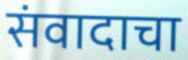
संवादाचा